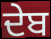
ਦੇਬ